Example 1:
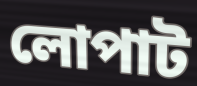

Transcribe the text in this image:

লোপাট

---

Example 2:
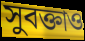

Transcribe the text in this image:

সুবক্তাও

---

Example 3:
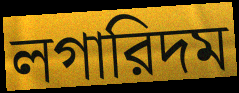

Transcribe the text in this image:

লগারিদম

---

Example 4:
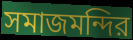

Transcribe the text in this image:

সমাজমন্দির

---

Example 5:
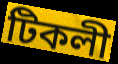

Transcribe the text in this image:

টিকলী